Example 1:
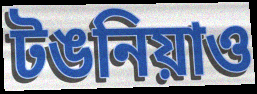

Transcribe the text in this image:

টঙনিয়াও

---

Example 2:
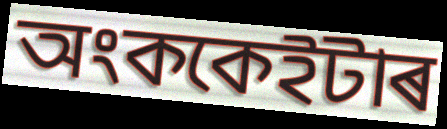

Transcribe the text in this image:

অংককেইটাৰ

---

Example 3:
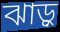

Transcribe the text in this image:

ঝাড়ু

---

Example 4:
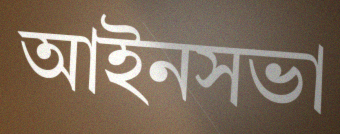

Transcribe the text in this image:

আইনসভা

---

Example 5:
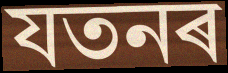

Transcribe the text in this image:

যতনৰ